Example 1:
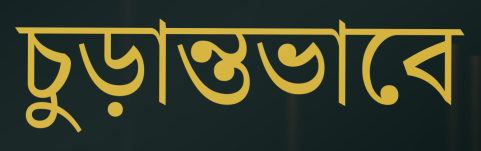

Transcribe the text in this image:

চুড়ান্তভাবে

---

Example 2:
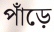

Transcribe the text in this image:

পাঁড়ে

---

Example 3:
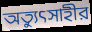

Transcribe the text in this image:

অত্যুৎসাহীর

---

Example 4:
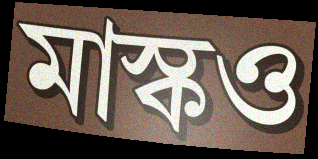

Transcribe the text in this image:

মাস্কও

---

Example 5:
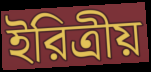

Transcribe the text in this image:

ইরিত্রীয়